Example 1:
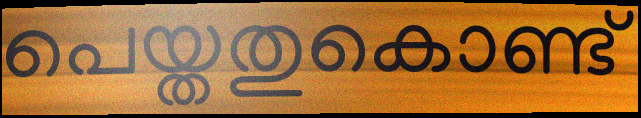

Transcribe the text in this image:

പെയ്തതുകൊണ്ട്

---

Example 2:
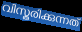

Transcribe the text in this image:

വിസ്തരിക്കുന്നത്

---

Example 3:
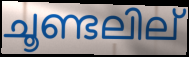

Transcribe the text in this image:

ചൂണ്ടലില്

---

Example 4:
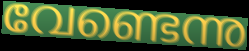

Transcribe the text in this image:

വേണ്ടെന്നു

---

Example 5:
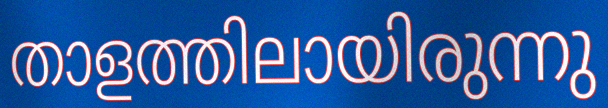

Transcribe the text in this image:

താളത്തിലായിരുന്നു